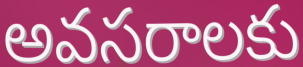
అవసరాలకు